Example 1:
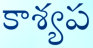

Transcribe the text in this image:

కాశ్యప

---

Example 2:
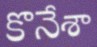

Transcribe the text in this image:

కొనేశా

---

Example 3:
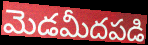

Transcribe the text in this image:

మెడమీదపడి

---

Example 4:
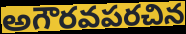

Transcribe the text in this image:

అగౌరవపరచిన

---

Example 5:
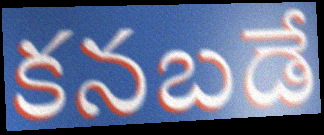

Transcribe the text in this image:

కనబడే